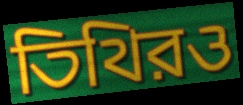
তিথিরও